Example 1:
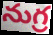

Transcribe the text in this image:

నుగ్ర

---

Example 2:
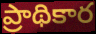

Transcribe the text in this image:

ప్రాథికార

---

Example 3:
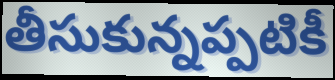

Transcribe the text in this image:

తీసుకున్నప్పటికీ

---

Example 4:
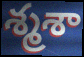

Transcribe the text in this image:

శ్మశా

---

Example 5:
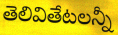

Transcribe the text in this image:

తెలివితేటలన్నీ